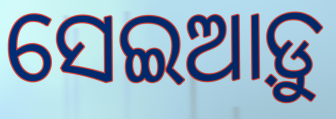
ସେଇଆଡ଼ୁ